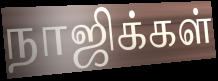
நாஜிக்கள்